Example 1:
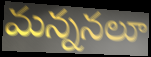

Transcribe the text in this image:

మన్ననలూ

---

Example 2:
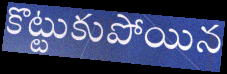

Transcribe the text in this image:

కొట్టుకుపోయిన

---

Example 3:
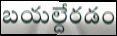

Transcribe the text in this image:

బయల్దేరడం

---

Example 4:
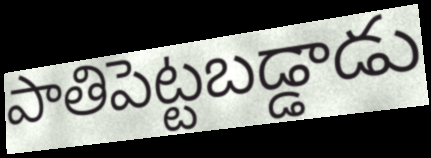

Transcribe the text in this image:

పాతిపెట్టబడ్డాడు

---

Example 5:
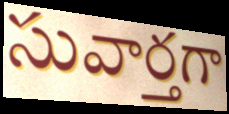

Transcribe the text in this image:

సువార్తగా